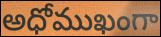
అధోముఖంగా